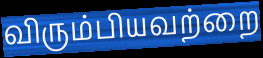
விரும்பியவற்றை